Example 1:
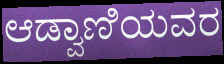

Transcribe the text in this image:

ಆಡ್ವಾಣಿಯವರ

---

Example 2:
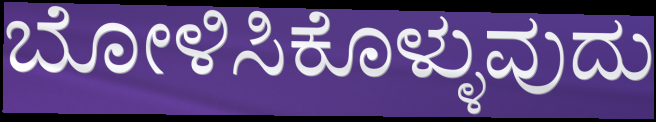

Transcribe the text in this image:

ಬೋಳಿಸಿಕೊಳ್ಳುವುದು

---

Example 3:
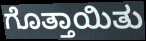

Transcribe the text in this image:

ಗೊತ್ತಾಯಿತು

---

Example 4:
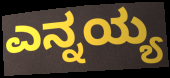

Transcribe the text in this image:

ಎನ್ನಯ್ಯ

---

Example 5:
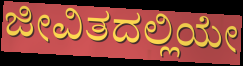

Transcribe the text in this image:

ಜೀವಿತದಲ್ಲಿಯೇ